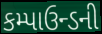
કમ્પાઉન્ડની